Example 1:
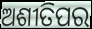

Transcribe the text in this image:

ଅଶୀତିପର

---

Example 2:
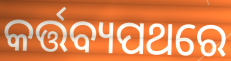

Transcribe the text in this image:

କର୍ତ୍ତବ୍ୟପଥରେ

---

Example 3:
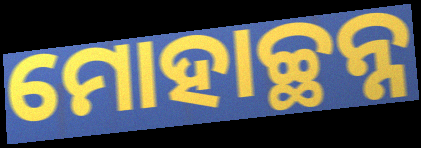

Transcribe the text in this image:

ମୋହାଚ୍ଛନ୍ନ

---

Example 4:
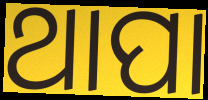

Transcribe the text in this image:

ଥାପା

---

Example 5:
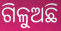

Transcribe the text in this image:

ଗିଳୁଅଛି